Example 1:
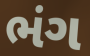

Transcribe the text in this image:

ભંગ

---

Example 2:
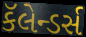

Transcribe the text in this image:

કૅલેન્ડર્સ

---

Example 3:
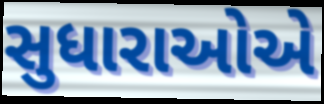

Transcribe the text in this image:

સુધારાઓએ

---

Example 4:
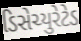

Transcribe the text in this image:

ડિસેચ્યુરેટેડ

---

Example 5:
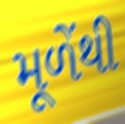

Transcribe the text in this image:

મૂળેંથી